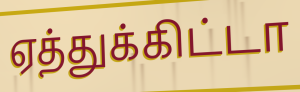
ஏத்துக்கிட்டா